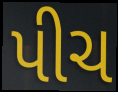
પીચ